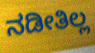
ನಡೀತಿಲ್ಲ